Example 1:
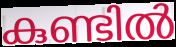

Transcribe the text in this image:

കുണ്ടിൽ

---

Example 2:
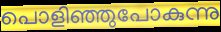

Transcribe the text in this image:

പൊളിഞ്ഞുപോകുന്നു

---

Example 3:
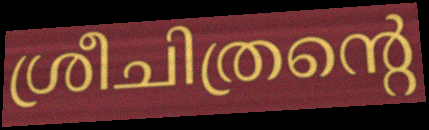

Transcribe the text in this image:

ശ്രീചിത്രന്റെ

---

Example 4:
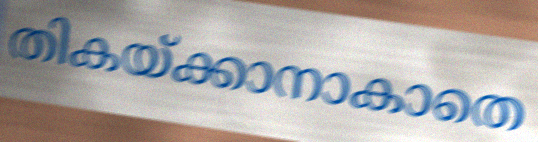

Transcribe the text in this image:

തികയ്ക്കാനാകാതെ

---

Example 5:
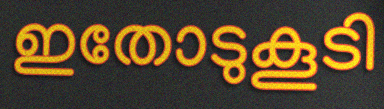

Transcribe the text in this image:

ഇതോടുകൂടി